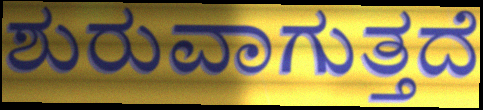
ಶುರುವಾಗುತ್ತದೆ